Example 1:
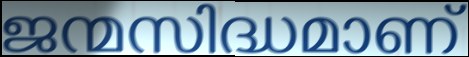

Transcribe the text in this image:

ജന്മസിദ്ധമാണ്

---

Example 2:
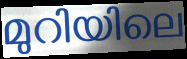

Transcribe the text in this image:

മുറിയിലെ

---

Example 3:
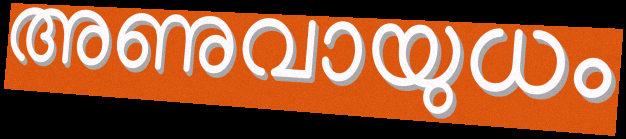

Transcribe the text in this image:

അണുവായുധം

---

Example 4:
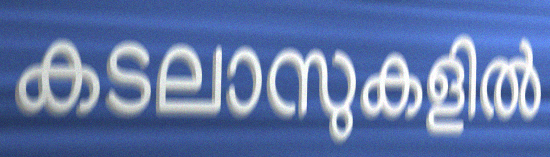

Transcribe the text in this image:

കടലാസുകളിൽ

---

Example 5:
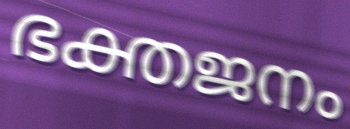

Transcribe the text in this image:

ഭക്തജനം